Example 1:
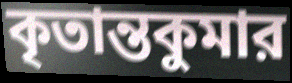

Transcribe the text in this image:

কৃতান্তকুমার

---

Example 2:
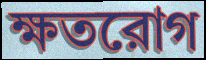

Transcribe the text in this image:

ক্ষতরোগ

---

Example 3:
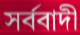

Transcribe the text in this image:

সর্ববাদী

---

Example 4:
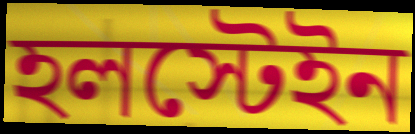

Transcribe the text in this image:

হলস্টেইন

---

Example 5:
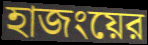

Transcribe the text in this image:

হাজংয়ের